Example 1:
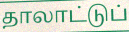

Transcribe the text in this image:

தாலாட்டுப்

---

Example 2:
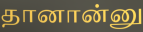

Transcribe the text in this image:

தானான்னு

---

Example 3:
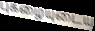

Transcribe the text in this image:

புகழையுடைய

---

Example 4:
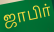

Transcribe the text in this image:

ஜாபிர்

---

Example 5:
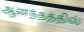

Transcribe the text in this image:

ஆனந்தத்தில்